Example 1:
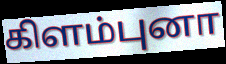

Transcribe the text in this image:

கிளம்புனா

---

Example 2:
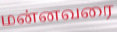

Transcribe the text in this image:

மன்னவரை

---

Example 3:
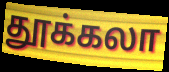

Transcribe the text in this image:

தூக்கலா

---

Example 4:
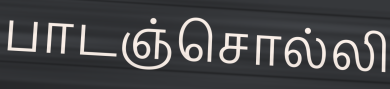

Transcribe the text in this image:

பாடஞ்சொல்லி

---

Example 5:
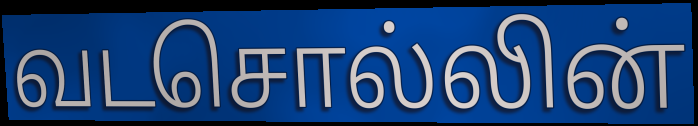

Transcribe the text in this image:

வடசொல்லின்